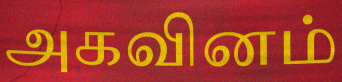
அகவினம்